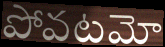
పోవటమో